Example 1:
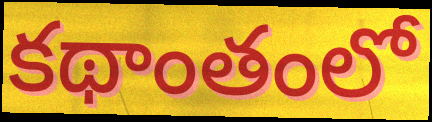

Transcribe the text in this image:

కథాంతంలో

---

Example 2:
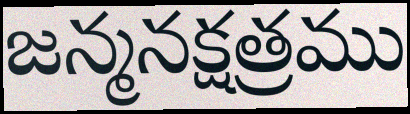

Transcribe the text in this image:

జన్మనక్షత్రము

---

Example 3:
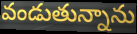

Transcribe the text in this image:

వండుతున్నాను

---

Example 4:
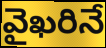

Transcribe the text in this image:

వైఖరినే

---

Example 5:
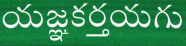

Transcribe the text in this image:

యజ్ఞకర్తయగు